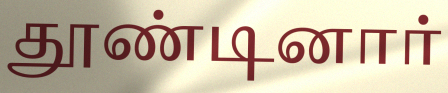
தூண்டினார்